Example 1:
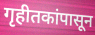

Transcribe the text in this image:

गृहीतकांपासून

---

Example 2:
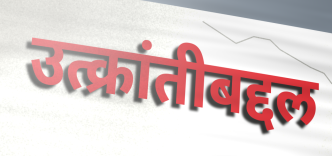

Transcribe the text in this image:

उत्क्रांतीबद्दल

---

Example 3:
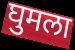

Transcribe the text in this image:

घुमला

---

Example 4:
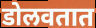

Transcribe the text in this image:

डोलवतात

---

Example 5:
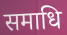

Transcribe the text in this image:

समाधि